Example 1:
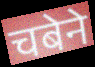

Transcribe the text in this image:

चबेने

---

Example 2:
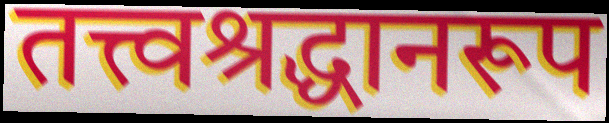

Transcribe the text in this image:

तत्त्वश्रद्धानरूप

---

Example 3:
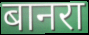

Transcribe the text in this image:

बानरा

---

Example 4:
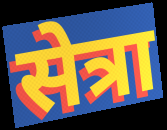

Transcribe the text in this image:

सेत्रा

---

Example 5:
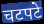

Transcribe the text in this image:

चटपटे